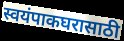
स्वयंपाकघरासाठी